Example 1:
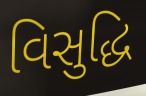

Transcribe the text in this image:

વિસુદ્ધિ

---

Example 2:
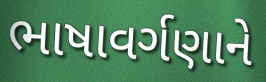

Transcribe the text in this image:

ભાષાવર્ગણાને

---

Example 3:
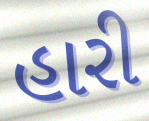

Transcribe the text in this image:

હારી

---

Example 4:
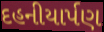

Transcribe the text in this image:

દહનીયાર્પણ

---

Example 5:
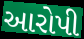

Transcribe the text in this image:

આરોપી